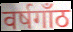
वर्षगाँठ